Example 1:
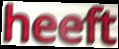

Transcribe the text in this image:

heeft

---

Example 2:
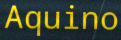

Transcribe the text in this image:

Aquino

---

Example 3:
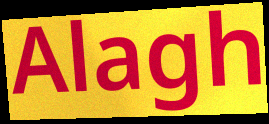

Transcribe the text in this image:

Alagh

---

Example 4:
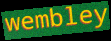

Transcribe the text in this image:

wembley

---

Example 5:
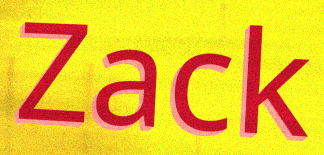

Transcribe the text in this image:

Zack